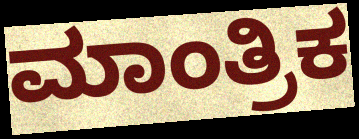
ಮಾಂತ್ರಿಕ